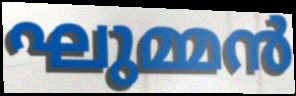
ഘുമ്മൻ